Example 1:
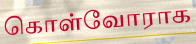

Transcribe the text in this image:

கொள்வோராக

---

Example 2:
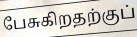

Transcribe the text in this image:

பேசுகிறதற்குப்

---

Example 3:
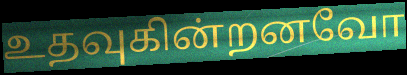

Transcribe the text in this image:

உதவுகின்றனவோ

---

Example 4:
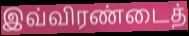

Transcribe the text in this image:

இவ்விரண்டைத்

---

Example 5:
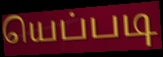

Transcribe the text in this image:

யெப்படி